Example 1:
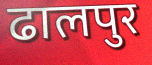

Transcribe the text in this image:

ढालपुर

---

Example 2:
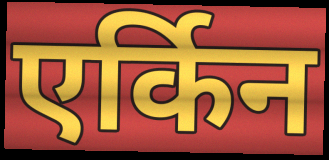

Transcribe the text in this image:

एर्किन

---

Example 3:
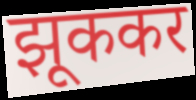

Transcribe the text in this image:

झूककर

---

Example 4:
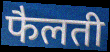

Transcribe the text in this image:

फैलती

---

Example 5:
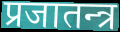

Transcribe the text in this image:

प्रजातन्त्र